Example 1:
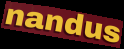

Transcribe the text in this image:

nandus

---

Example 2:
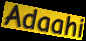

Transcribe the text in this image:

Adaahi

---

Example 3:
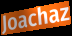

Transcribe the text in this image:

Joachaz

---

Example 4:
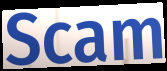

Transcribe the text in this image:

Scam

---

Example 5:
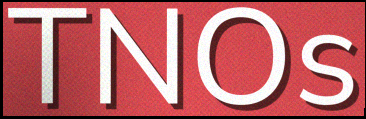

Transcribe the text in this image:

TNOs